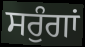
ਸਰੁੰਗਾਂ